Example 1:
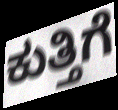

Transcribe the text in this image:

ಕುತ್ತಿಗೆ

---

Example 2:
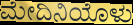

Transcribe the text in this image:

ಮೇದಿನಿಯೊಳು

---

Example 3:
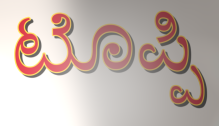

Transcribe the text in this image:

ಟೊಪ್ಪಿ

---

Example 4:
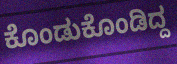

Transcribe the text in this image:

ಕೊಂಡುಕೊಂಡಿದ್ದ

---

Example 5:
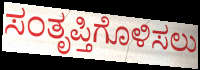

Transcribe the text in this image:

ಸಂತೃಪ್ತಿಗೊಳಿಸಲು